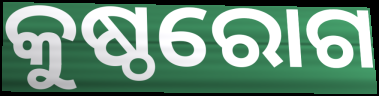
କୁଷ୍ଠରୋଗ